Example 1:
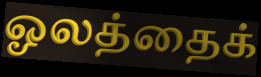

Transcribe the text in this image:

ஓலத்தைக்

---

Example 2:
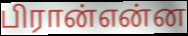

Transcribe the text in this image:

பிரான்என்ன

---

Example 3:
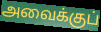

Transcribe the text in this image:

அவைக்குப்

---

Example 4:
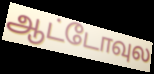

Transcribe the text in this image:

ஆட்டோவுல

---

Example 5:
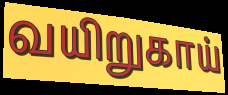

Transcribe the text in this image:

வயிறுகாய்